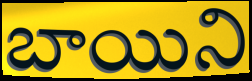
బాయిని